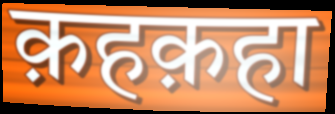
क़हक़हा